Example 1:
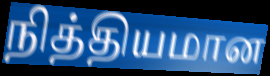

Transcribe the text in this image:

நித்தியமான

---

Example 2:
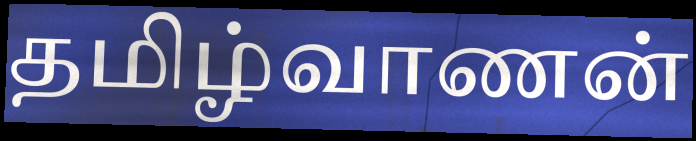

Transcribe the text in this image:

தமிழ்வாணன்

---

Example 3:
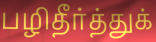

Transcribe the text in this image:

பழிதீர்த்துக்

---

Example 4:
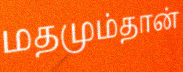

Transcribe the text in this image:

மதமும்தான்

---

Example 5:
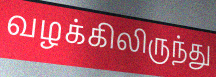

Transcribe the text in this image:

வழக்கிலிருந்து